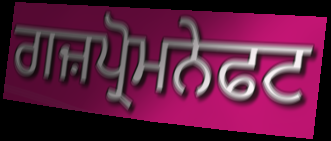
ਗਜ਼ਪ੍ਰੋਮਨੇਫਟ